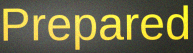
Prepared